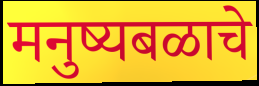
मनुष्यबळाचे